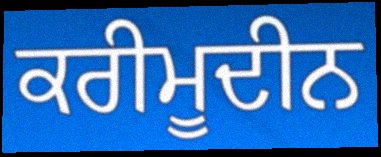
ਕਰੀਮੂਦੀਨ